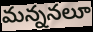
మన్ననలూ